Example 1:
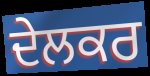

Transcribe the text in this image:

ਦੇਲਕਰ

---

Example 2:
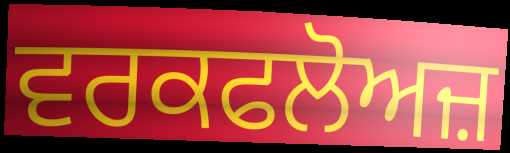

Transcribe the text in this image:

ਵਰਕਫਲੋਅਜ਼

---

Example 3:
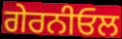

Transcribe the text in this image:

ਗੇਰਨੀਓਲ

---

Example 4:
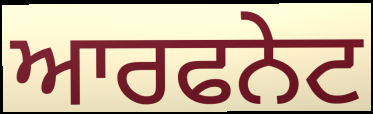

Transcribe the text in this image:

ਆਰਫਨੇਟ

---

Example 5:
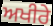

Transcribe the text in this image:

ਅਖੀਰੇ